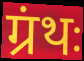
ग्रंथः